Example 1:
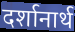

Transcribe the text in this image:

दर्शानार्थ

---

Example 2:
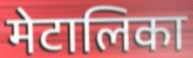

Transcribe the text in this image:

मेटालिका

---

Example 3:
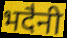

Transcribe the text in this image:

भदैनी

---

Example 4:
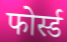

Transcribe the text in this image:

फोर्स्ड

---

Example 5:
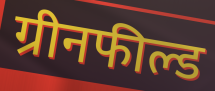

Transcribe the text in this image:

ग्रीनफील्ड